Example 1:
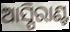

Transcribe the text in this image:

ଆସ୍ପିରାଣ୍ଟ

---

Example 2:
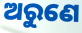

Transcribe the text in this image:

ଅରୁଣେ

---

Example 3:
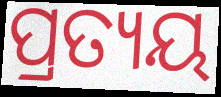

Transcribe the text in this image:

ପ୍ରତ୍ୟୟ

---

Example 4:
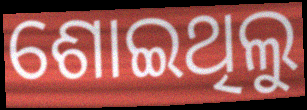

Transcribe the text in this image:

ଶୋଇଥିଲୁ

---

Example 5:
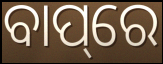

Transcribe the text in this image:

ବାପ୍‌ରେ